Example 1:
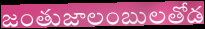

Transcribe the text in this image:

జంతుజాలంబులతోడ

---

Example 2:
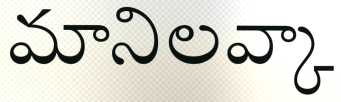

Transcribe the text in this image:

మానిలవ్కా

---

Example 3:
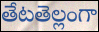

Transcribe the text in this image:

తేటతెల్లంగా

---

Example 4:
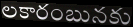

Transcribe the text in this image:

లకారంబునకు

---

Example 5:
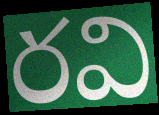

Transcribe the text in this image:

రవి